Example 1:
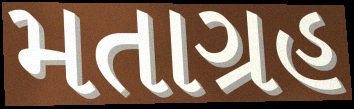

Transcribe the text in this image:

મતાગ્રહ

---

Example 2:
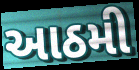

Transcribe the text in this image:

આઠમી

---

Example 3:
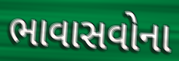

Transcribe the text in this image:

ભાવાસવોના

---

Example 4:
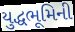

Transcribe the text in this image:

યુદ્ધભૂમિની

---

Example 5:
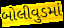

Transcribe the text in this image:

બોલીવુડમાં